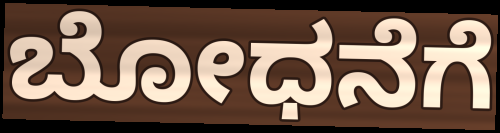
ಬೋಧನೆಗೆ